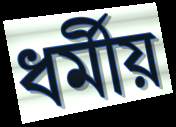
ধৰ্মীয়